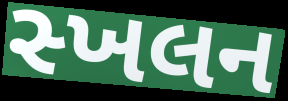
સ્ખલન